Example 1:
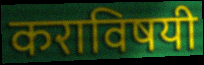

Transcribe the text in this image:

कराविषयी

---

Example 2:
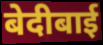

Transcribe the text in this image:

बेदीबाई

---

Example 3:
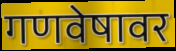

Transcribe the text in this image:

गणवेषावर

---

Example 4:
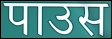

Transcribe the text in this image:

पाउस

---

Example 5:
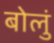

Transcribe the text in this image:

बोलुं